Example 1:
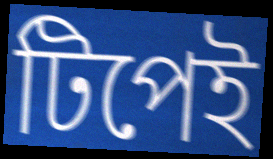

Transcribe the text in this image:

টিপেই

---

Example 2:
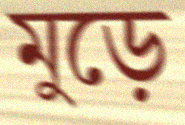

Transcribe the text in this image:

মুড়ে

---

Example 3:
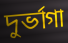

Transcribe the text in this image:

দুর্ভাগা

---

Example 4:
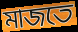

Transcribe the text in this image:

মাজতে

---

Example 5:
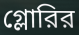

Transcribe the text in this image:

গ্লোরির